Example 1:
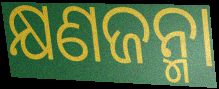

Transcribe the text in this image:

କ୍ଷଣଜନ୍ମା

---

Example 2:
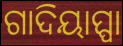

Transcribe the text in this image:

ଗାଦିୟାପ୍ପା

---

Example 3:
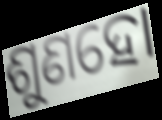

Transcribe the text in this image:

ଶୁଣହୋ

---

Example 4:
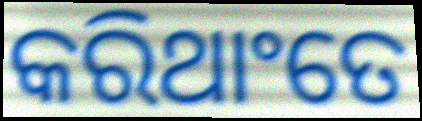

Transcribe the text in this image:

କରିଥାଂତେ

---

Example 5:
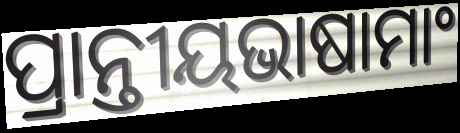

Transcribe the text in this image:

ପ୍ରାନ୍ତୀୟଭାଷାମାଂ